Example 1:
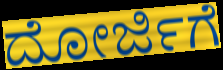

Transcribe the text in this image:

ದೋರ್ಜಿಗೆ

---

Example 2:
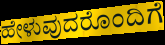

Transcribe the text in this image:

ಹೇಳುವುದರೊಂದಿಗೆ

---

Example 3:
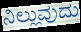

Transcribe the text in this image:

ನಿಲ್ಲುವುದು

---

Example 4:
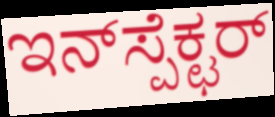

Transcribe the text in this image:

ಇನ್‌ಸ್ಪೆಕ್ಟರ್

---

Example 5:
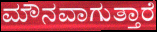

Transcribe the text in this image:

ಮೌನವಾಗುತ್ತಾರೆ